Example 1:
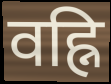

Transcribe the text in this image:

वह्नि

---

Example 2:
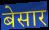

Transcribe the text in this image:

बेसार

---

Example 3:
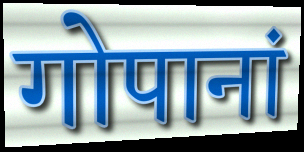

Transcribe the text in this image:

गोपानां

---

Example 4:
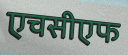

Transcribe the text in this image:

एचसीएफ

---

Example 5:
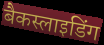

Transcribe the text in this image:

बैकस्लाइडिंग